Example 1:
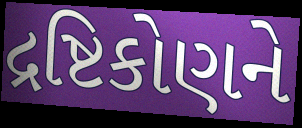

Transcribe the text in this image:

દ્રષ્ટિકોણને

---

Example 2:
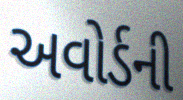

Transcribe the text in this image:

અવોર્ડની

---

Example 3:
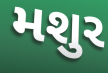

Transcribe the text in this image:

મશુર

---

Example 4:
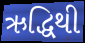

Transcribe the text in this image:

ઋદ્ધિથી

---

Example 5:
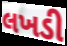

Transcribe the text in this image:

લખડી